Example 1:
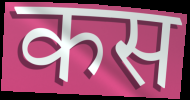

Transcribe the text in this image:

कस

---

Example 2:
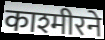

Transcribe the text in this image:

काश्मीरने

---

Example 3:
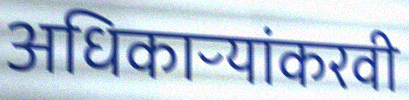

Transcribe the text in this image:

अधिकाऱ्यांकरवी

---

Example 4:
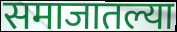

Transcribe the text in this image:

समाजातल्या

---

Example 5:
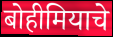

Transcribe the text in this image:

बोहीमियाचे